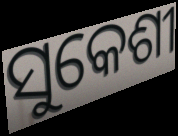
ସୁକେଶୀ